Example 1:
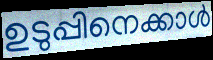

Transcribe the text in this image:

ഉടുപ്പിനെക്കാൾ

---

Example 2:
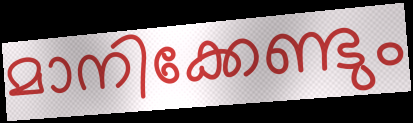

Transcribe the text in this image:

മാനിക്കേണ്ടും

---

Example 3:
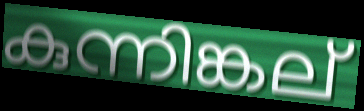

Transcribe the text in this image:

കുന്നിങ്കല്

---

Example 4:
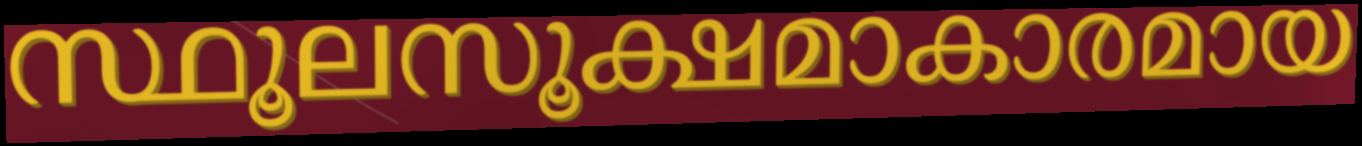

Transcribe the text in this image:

സ്ഥൂലസൂക്ഷമാകാരമായ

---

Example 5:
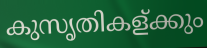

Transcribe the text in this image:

കുസൃതികള്ക്കും